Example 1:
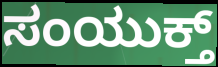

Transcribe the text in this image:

ಸಂಯುಕ್ತ್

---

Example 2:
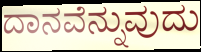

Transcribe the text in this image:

ದಾನವೆನ್ನುವುದು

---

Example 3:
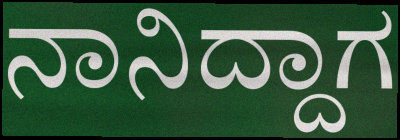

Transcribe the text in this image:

ನಾನಿದ್ದಾಗ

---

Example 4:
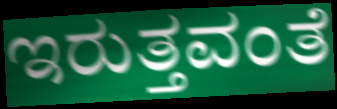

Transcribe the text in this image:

ಇರುತ್ತವಂತೆ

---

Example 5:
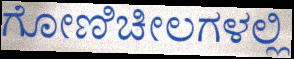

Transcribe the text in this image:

ಗೋಣಿಚೀಲಗಳಲ್ಲಿ